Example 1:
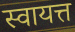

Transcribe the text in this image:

स्वायत्त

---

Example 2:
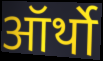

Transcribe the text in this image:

ऑर्थो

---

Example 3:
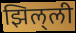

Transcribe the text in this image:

झिल्ली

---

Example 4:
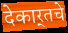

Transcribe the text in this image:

देकार्तचे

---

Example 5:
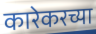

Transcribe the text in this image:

कारेकरच्या